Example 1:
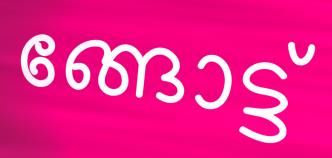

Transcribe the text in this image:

ങ്ങോട്ട്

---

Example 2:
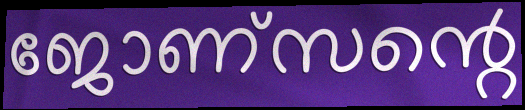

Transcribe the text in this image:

ജോണ്സന്റെ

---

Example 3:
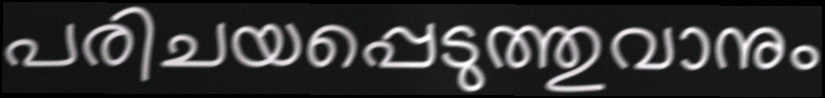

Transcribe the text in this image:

പരിചയപ്പെടുത്തുവാനും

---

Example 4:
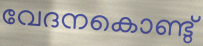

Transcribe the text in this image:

വേദനകൊണ്ടു്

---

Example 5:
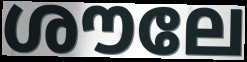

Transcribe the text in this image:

ശൗലേ